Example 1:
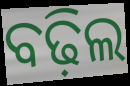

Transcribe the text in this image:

ବଢ଼ିଲ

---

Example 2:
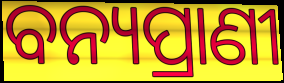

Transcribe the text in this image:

ବନ୍ୟପ୍ରାଣୀ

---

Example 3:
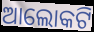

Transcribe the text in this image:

ଆଲୋକଟି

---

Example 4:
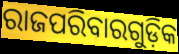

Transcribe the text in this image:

ରାଜପରିବାରଗୁଡ଼ିକ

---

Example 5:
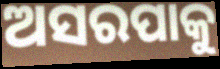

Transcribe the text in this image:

ଅସରପାକୁ